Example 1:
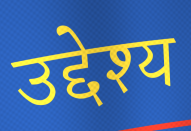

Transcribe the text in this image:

उद्देश्य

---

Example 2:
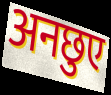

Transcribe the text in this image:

अनछुए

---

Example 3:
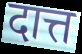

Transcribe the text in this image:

दात्त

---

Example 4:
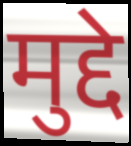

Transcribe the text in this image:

मुद्दे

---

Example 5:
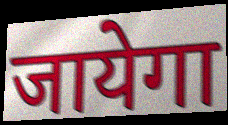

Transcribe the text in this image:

जायेगा